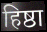
हिष्ठा